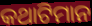
କଥାଟିମାନ